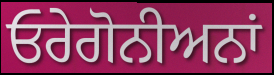
ਓਰੇਗੋਨੀਅਨਾਂ